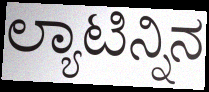
ಲ್ಯಾಟಿನ್ನಿನ